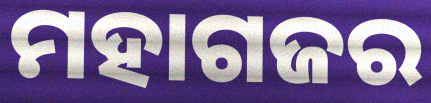
ମହାଗଜର